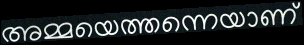
അമ്മയെത്തന്നെയാണ്